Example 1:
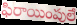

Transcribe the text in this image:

ఫిరాయింపులే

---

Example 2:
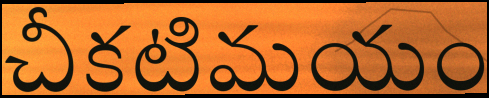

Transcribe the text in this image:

చీకటిమయం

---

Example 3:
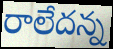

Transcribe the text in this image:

రాలేదన్న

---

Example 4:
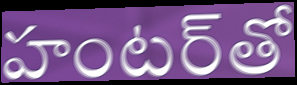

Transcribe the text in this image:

హంటర్‌తో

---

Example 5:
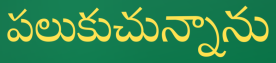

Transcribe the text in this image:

పలుకుచున్నాను